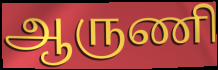
ஆருணி